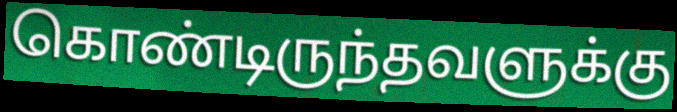
கொண்டிருந்தவளுக்கு